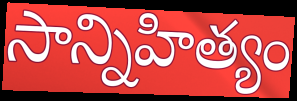
సాన్నిహిత్యం